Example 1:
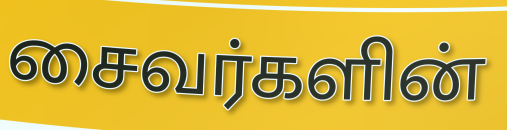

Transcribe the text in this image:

சைவர்களின்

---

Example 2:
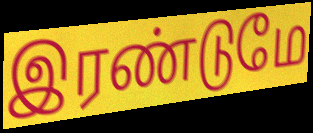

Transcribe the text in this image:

இரண்டுமே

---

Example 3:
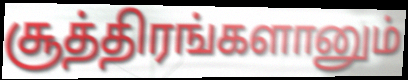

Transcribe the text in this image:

சூத்திரங்களானும்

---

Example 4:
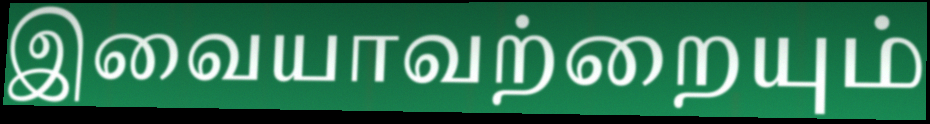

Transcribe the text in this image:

இவையாவற்றையும்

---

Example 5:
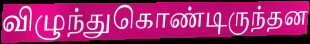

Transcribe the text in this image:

விழுந்துகொண்டிருந்தன